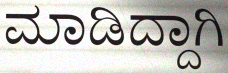
ಮಾಡಿದ್ದಾಗಿ